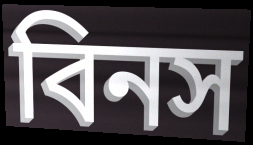
বিনস